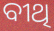
ବୀଥି